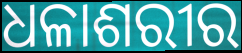
ଧଳାଶରୀର